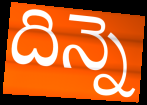
దిన్నె